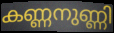
കണ്ണനുണ്ണി